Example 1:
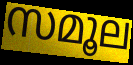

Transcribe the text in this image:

സമൂല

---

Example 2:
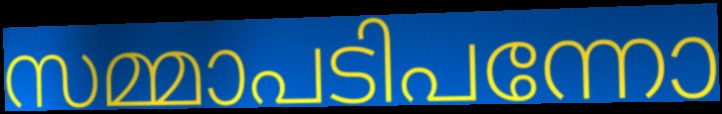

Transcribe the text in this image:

സമ്മാപടിപന്നോ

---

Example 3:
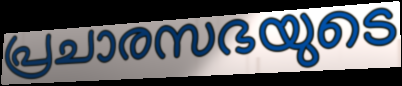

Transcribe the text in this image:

പ്രചാരസഭയുടെ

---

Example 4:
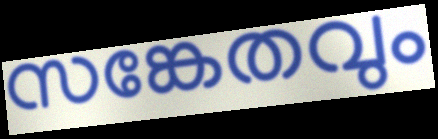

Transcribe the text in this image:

സങ്കേതവും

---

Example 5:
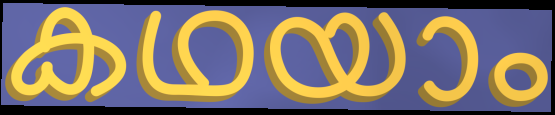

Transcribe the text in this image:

കഥയാം